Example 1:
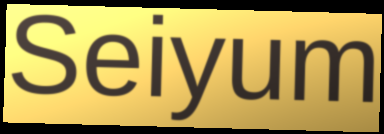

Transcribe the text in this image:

Seiyum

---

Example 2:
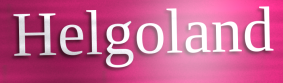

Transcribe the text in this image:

Helgoland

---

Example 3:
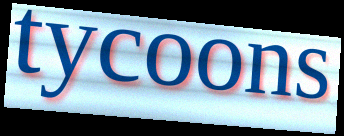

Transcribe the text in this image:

tycoons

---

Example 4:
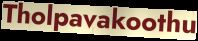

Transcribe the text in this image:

Tholpavakoothu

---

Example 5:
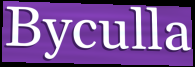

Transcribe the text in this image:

Byculla